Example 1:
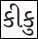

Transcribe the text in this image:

કીકુ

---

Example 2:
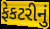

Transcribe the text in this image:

ફેકટરીનું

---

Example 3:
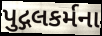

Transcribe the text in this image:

પુદ્ગલકર્મના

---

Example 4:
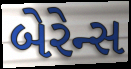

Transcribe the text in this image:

બેરેન્સ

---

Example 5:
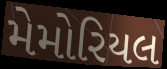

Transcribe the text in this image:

મેમોરિયલ